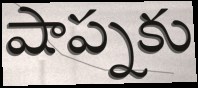
షాప్నకు